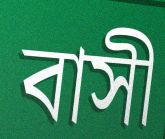
বাসী